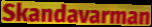
Skandavarman